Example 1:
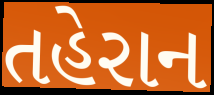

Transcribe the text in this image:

તહેરાન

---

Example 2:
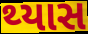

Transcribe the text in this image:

થ્યાસ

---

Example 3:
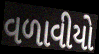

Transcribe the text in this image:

વળાવીયો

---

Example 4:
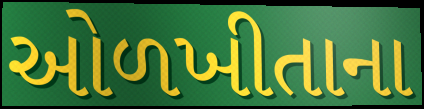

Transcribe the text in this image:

ઓળખીતાના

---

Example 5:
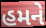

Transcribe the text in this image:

હમને